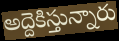
అద్దెకిస్తున్నారు